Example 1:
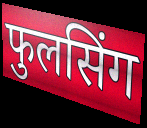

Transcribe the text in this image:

फुलसिंग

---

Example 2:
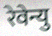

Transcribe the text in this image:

रेवेन्यु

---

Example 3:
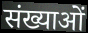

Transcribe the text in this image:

संख्याओं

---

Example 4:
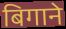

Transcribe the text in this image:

बिगाने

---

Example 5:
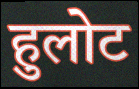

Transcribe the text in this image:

हुलोट